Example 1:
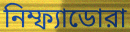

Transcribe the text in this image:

নিম্ফ্যাডোরা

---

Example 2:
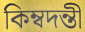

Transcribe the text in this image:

কিম্বদন্তী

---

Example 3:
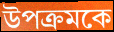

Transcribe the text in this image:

উপক্রমকে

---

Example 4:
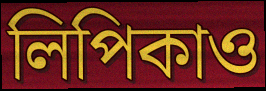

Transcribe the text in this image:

লিপিকাও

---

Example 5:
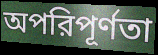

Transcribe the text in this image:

অপরিপূর্ণতা